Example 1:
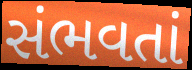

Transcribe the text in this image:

સંભવતાં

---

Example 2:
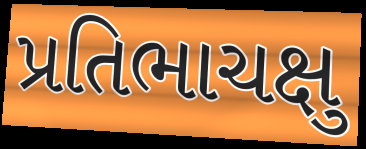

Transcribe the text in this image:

પ્રતિભાચક્ષુ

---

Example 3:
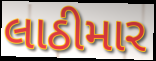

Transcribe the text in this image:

લાઠીમાર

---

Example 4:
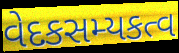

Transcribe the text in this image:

વેદકસમ્યકત્વ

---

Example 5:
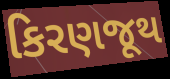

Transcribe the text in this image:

કિરણજૂથ